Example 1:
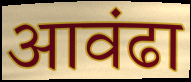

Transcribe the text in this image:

आवंढा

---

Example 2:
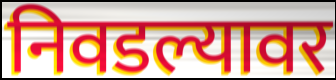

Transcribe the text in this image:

निवडल्यावर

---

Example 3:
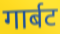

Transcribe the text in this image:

गार्बट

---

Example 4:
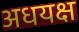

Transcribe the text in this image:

अधयक्ष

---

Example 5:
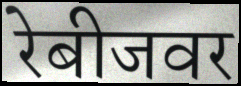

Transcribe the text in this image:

रेबीजवर